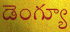
డెంగ్యూ